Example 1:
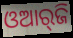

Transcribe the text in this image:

ଓଆର୍‌ଜି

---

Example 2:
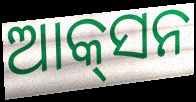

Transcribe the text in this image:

ଆକ୍‌ସନ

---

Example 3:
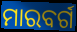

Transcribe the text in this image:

ମାରବର୍ଗ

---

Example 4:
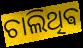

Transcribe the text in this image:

ଚାଲିଥିଵ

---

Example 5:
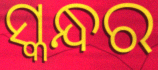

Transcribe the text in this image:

ସ୍କନ୍ଧର